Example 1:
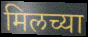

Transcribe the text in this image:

मिलच्या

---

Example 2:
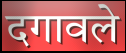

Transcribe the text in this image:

दगावले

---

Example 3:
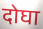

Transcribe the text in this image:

दोघा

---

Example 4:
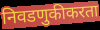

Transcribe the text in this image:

निवडणुकीकरता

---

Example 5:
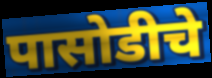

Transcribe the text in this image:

पासोडीचे